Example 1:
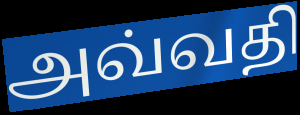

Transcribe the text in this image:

அவ்வதி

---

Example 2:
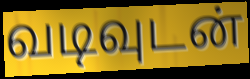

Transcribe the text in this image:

வடிவுடன்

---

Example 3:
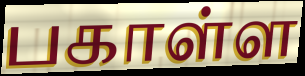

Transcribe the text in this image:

பகாள்ள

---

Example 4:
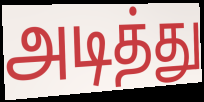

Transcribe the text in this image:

அடித்து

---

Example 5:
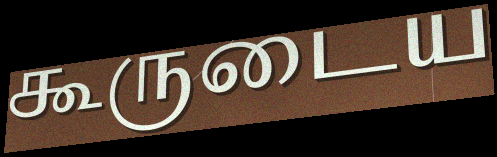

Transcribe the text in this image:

கூருடைய